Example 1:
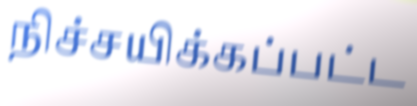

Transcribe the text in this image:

நிச்சயிக்கப்பட்ட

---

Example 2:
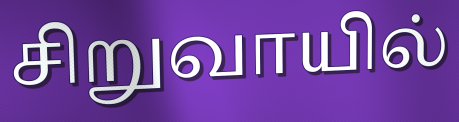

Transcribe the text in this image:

சிறுவாயில்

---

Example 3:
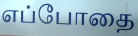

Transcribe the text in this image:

எப்போதை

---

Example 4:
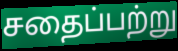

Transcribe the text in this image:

சதைப்பற்று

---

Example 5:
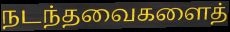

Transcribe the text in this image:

நடந்தவைகளைத்